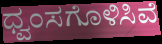
ಧ್ವಂಸಗೊಳಿಸಿವೆ